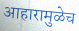
आहारामुळेच